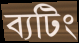
ব্যটিং